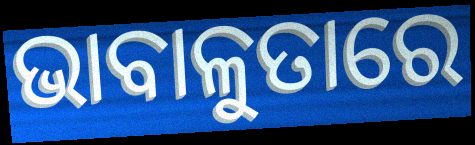
ଭାବାଳୁତାରେ